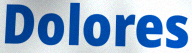
Dolores